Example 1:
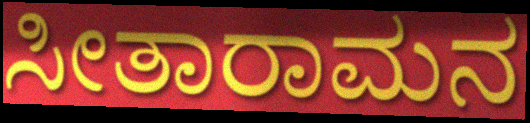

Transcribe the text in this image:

ಸೀತಾರಾಮನ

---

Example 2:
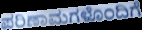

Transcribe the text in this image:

ಪರಿಣಾಮಗಳೊಂದಿಗೆ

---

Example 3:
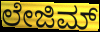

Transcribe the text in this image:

ಲೇಜಿಮ್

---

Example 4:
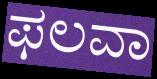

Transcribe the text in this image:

ಫಲವಾ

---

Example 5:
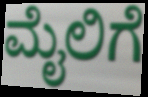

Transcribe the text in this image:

ಮೈಲಿಗೆ